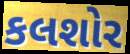
કલશોર